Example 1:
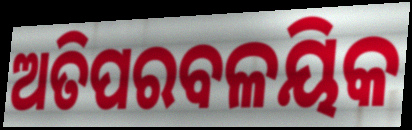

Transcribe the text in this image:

ଅତିପରବଳୟିକ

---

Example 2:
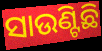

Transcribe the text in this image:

ସାଉଣ୍ଟିଛି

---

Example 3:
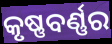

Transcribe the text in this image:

କୃଷ୍ଣବର୍ଣ୍ଣର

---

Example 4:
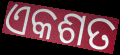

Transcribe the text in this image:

ଏକଶତ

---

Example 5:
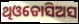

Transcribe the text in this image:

ଥିଓଡୋସିଅସ